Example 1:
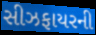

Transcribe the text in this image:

સીઝફાયરની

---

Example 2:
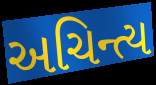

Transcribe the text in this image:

અચિન્ત્ય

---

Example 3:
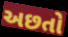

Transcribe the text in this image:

અછતો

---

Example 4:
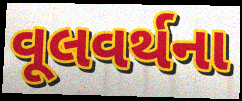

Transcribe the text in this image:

વૂલવર્થના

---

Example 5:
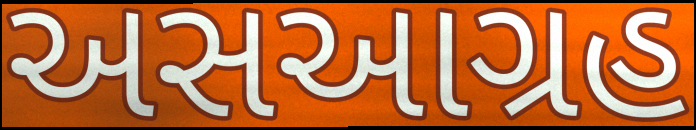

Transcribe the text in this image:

અસઆગ્રહ